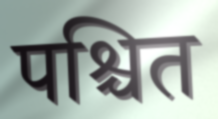
पश्चित